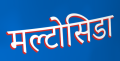
मल्टोसिडा